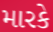
મારકે